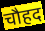
चौहद